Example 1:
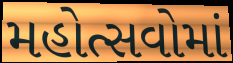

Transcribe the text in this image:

મહોત્સવોમાં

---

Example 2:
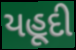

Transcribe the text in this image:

યહૂદી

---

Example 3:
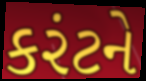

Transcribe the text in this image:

કરંટને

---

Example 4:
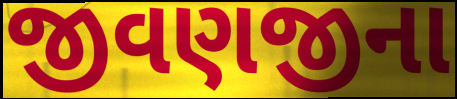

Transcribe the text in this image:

જીવણજીના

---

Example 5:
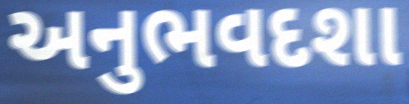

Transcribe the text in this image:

અનુભવદશા